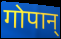
गोपान्